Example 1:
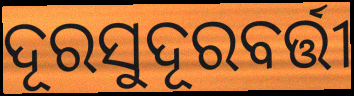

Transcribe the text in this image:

ଦୂରସୁଦୂରବର୍ତ୍ତୀ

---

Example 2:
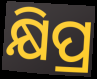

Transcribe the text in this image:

କ୍ଷିପ୍ର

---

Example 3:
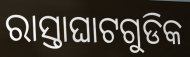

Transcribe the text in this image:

ରାସ୍ତାଘାଟଗୁଡିକ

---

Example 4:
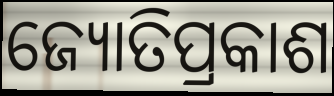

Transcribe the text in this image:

ଜ୍ୟୋତିପ୍ରକାଶ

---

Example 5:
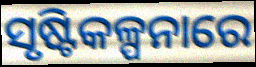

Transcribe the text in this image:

ସୃଷ୍ଟିକଳ୍ପନାରେ